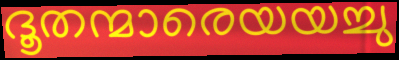
ദൂതന്മാരെയയച്ചു